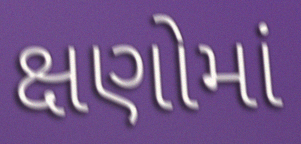
ક્ષણોમાં